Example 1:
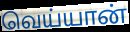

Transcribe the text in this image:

வெய்யான்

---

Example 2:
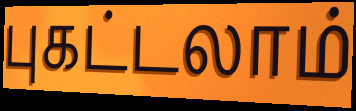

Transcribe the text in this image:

புகட்டலாம்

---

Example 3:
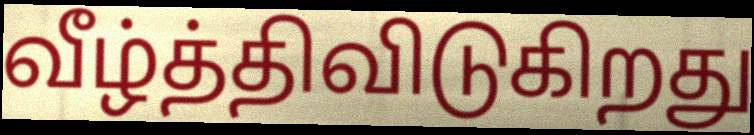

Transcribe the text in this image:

வீழ்த்திவிடுகிறது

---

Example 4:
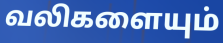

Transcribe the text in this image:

வலிகளையும்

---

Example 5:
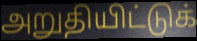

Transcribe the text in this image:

அறுதியிட்டுக்